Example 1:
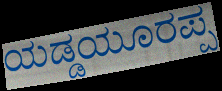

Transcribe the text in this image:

ಯಡ್ಡಯೂರಪ್ಪ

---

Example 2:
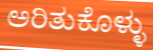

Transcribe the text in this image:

ಅರಿತುಕೊಳ್ಳು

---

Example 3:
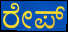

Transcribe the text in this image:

ರೇಪ್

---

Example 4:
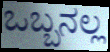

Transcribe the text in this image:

ಒಬ್ಬನಲ್ಲ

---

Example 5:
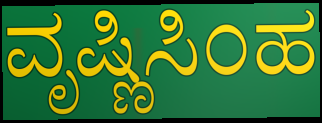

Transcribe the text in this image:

ವೃಷ್ಣಿಸಿಂಹ